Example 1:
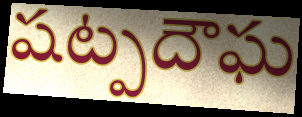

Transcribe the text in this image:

షట్పదౌఘ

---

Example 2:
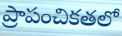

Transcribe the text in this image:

ప్రాపంచికతలో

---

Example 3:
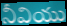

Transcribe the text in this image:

నీవియు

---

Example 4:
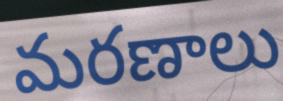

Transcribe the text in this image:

మరణాలు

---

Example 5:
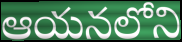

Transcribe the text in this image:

ఆయనలోని